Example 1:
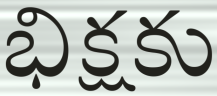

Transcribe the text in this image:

భిక్షకు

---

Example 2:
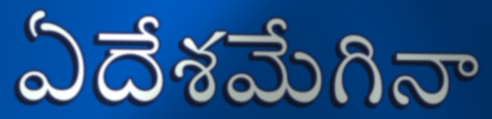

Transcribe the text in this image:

ఏదేశమేగినా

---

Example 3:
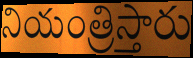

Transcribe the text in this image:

నియంత్రిస్తారు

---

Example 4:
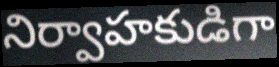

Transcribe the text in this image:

నిర్వాహకుడిగా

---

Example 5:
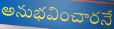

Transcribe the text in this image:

అనుభవించారనే